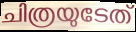
ചിത്രയുടേത്